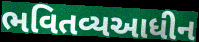
ભવિતવ્યઆધીન